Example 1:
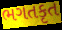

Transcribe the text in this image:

ભગતકૃત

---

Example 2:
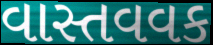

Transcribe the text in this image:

વાસ્તવવક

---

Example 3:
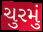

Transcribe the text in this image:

ચુરમું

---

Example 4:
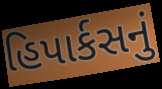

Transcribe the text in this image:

હિપાર્કસનું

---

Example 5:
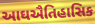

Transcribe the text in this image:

આઘઐતિહાસિક